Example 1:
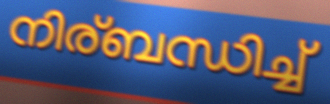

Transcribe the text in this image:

നിര്ബന്ധിച്ച്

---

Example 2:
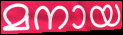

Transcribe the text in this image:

മനായ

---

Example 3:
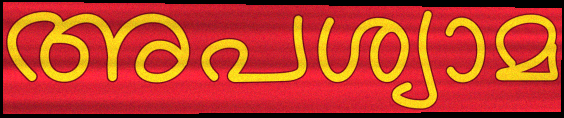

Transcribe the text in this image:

അപശ്യാമ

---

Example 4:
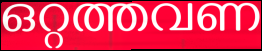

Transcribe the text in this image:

ഒറ്റത്തവണ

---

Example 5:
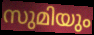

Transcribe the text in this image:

സുമിയും